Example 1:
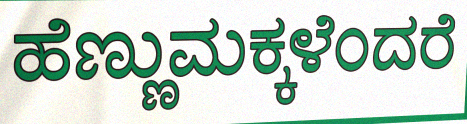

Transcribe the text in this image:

ಹೆಣ್ಣುಮಕ್ಕಳೆಂದರೆ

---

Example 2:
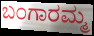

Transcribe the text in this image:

ಬಂಗಾರಮ್ಮ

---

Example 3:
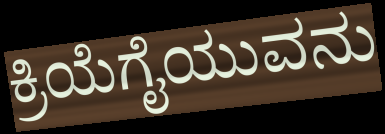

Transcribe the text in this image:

ಕ್ರಿಯೆಗೈಯುವನು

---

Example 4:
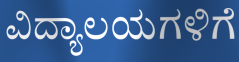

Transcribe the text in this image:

ವಿದ್ಯಾಲಯಗಳಿಗೆ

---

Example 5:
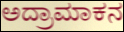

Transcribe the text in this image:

ಅದ್ರಾಮಾಕನ